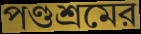
পণ্ডশ্রমের